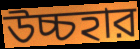
উচ্চহার